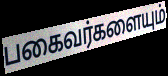
பகைவர்களையும்